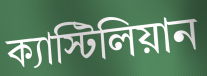
ক্যাস্টিলিয়ান